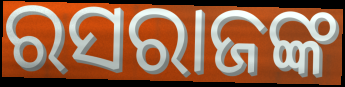
ରସରାଜଙ୍କ